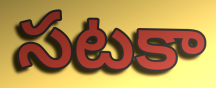
సటకా